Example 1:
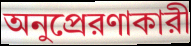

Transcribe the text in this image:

অনুপ্রেরণাকারী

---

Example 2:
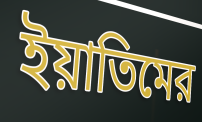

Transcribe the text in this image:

ইয়াতিমের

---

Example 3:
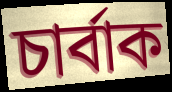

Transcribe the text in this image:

চার্বাক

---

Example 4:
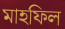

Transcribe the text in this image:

মাহফিল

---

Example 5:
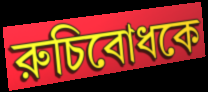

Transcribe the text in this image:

রুচিবোধকে